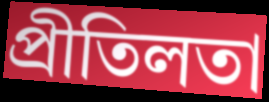
প্রীতিলতা